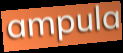
ampula